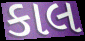
કાલ